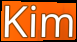
Kim